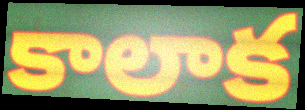
కాలాక